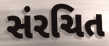
સંરચિત